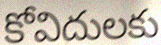
కోవిదులకు